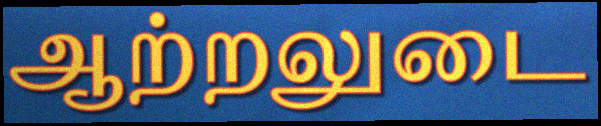
ஆற்றலுடை